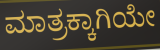
ಮಾತ್ರಕ್ಕಾಗಿಯೇ